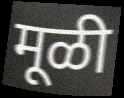
मूळी